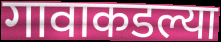
गावाकडल्या